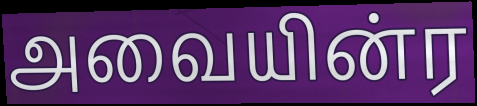
அவையின்ர